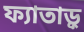
ফ্যাতাড়ু